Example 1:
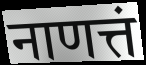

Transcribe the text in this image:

नाणत्तं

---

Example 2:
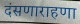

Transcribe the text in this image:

दंसणाराहणा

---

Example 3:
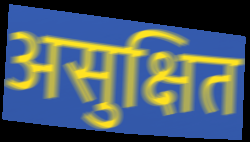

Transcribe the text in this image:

असुक्षित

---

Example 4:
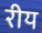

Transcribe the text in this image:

रीय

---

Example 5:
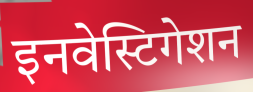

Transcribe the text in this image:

इनवेस्टिगेशन